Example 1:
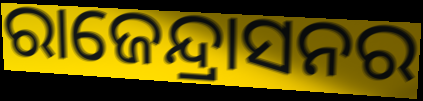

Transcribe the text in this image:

ରାଜେନ୍ଦ୍ରାସନର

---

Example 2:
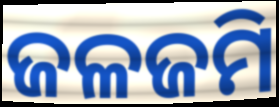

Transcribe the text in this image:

ଜଳଜମି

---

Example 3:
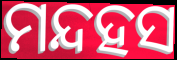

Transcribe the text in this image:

ମନ୍ଦହସ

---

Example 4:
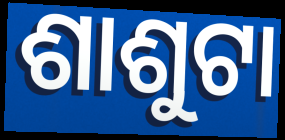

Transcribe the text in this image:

ଶାଶୁଟା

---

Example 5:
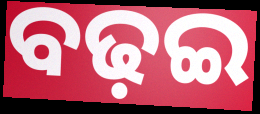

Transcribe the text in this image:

ବଢ଼ଇ